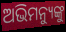
ଅଭିମନ୍ୟୁଙ୍କୁ